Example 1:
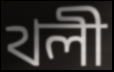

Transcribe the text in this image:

থলী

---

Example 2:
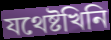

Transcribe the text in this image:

যথেষ্টখিনি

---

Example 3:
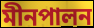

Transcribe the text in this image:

মীনপালন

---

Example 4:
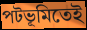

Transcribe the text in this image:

পটভূমিতেই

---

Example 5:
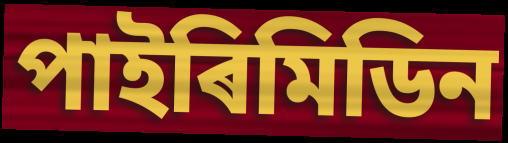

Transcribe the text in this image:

পাইৰিমিডিন